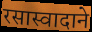
रसास्वादाने